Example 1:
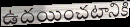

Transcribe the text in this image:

ఉదయించటానికి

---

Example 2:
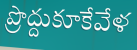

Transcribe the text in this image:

ప్రొద్దుకూకేవేళ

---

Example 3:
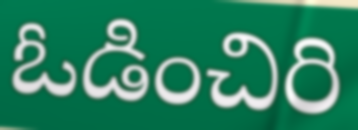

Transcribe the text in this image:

ఓడించిరి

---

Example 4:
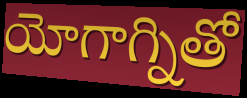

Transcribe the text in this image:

యోగాగ్నితో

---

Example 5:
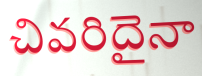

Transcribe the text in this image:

చివరిదైనా